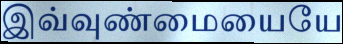
இவ்வுண்மையையே